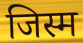
जिस्म